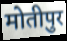
मोतीपुर